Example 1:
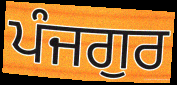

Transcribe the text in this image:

ਪੰਜਗੁਰ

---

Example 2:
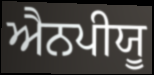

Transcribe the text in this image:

ਐਨਪੀਯੂ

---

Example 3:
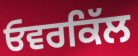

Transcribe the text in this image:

ਓਵਰਕਿੱਲ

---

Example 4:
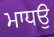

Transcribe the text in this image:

ਮਾਧਉ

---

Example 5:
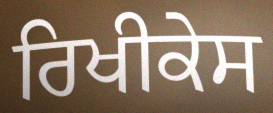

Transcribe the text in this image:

ਰਿਖੀਕੇਸ